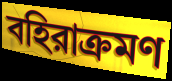
বহিরাক্রমণ